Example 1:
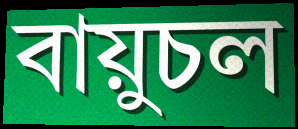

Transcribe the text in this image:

বায়ুচল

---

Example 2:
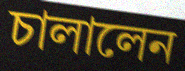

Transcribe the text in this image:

চালালেন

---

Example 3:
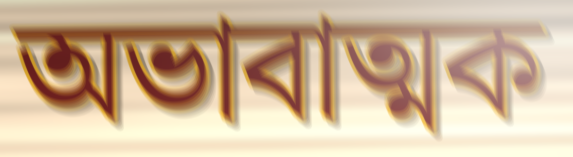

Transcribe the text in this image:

অভাবাত্মক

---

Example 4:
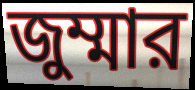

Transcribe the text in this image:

জুম্মার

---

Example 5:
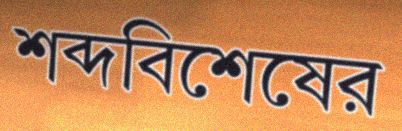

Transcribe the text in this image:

শব্দবিশেষের